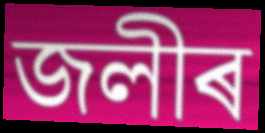
জলীৰ